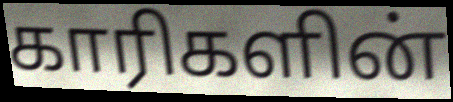
காரிகளின்